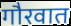
गौरवात